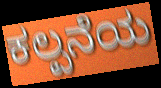
ಕಲ್ಪನೆಯ